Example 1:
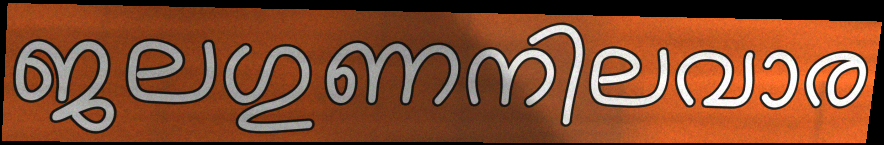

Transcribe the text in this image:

ജലഗുണനിലവാര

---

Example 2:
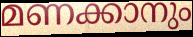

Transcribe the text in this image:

മണക്കാനും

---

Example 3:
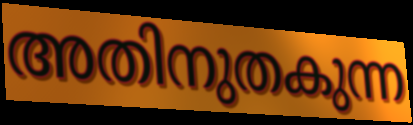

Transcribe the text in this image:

അതിനുതകുന്ന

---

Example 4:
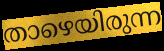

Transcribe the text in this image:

താഴെയിരുന്ന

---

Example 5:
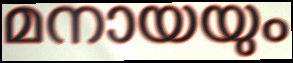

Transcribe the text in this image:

മനായയും